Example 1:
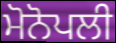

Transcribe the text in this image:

ਮੋਨੋਪਲੀ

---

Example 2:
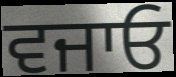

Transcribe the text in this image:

ਵਜਾਓ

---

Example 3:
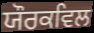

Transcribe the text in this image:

ਯੌਰਕਵਿਲ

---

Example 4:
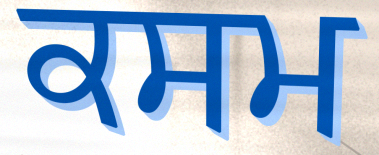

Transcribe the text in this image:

ਕਸਮ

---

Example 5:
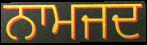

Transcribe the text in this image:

ਨਾਮਜਦ